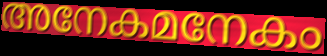
അനേകമനേകം